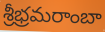
శ్రీభ్రమరాంబా